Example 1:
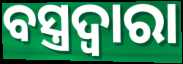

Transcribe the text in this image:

ବସ୍ତ୍ରଦ୍ୱାରା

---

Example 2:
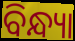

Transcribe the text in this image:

ବିନ୍ଧ୍ୟା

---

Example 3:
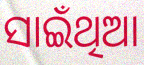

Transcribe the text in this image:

ସାଇଁଥିଆ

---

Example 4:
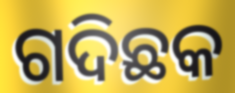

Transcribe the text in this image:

ଗଦିଛକ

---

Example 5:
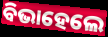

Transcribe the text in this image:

ବିଭାହେଲେ